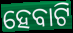
ହେବାଟି